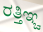
ರತ್ತಿಞ್ಚ